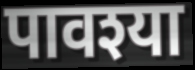
पावश्या